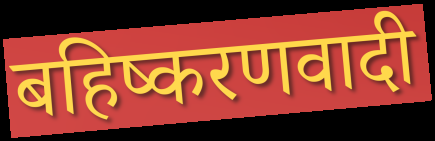
बहिष्करणवादी